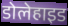
डोलेहाइड